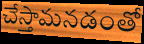
చేస్తామనడంతో